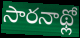
సారనాథ్లో